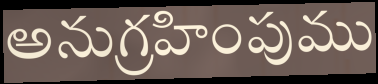
అనుగ్రహింపుము